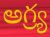
అగ్ర్య